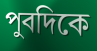
পুবদিকে